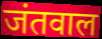
जंतवाल